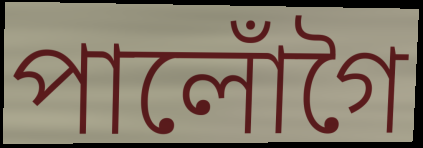
পালোঁগৈ